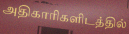
அதிகாரிகளிடத்தில்